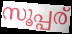
സൂപ്പര്